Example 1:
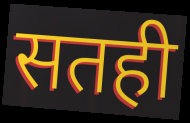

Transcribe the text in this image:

सतही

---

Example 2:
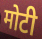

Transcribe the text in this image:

मोटी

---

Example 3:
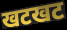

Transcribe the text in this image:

खटखट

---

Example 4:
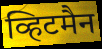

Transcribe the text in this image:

व्हिटमैन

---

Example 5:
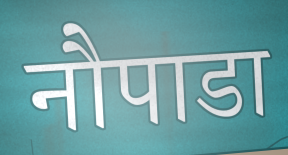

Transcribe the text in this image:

नौपाडा